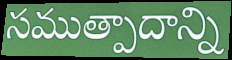
సముత్పాదాన్ని